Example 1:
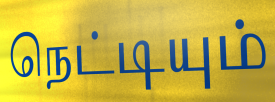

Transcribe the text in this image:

நெட்டியும்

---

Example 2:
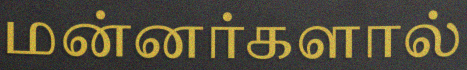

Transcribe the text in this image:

மன்னர்களால்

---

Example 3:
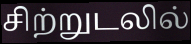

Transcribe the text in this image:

சிற்றுடலில்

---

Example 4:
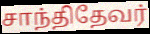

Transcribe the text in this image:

சாந்திதேவர்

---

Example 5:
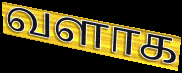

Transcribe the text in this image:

வளாக